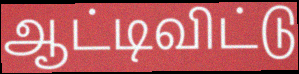
ஆட்டிவிட்டு